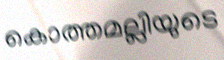
കൊത്തമല്ലിയുടെ